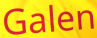
Galen